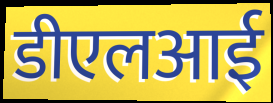
डीएलआई